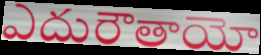
ఎదురౌతాయో